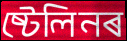
ষ্টেলিনৰ